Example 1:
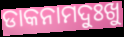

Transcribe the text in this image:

ଡାକନାମଦୁଃଖୁ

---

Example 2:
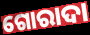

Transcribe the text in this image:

ଗୋରାଦା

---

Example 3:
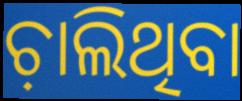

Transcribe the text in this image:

ଚ଼ାଲିଥିବା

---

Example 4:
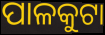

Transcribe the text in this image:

ପାଳକୁଟା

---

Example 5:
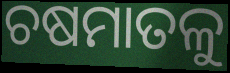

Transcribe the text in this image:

ଚଷମାତଳୁ